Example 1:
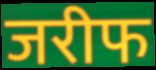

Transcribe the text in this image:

जरीफ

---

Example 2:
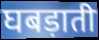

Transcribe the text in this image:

घबड़ाती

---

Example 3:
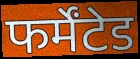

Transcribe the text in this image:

फर्मेंटेड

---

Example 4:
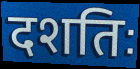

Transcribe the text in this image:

दशतिः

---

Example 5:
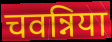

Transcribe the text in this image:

चवन्निया